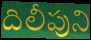
దిలీపుని